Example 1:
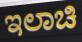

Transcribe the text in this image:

ಇಲಾಚಿ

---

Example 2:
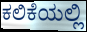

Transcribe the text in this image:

ಕಲಿಕೆಯಲ್ಲಿ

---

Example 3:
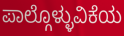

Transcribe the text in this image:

ಪಾಲ್ಗೊಳ್ಳುವಿಕೆಯ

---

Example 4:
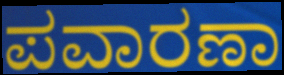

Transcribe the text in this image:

ಪವಾರಣಾ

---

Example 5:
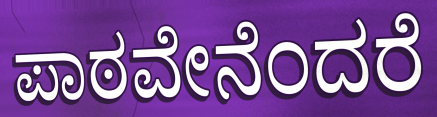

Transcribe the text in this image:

ಪಾಠವೇನೆಂದರೆ